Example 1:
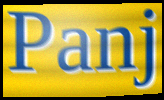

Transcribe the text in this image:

Panj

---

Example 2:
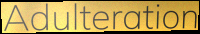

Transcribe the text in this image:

Adulteration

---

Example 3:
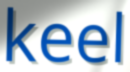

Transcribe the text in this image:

keel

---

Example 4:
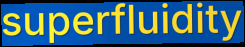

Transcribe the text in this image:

superfluidity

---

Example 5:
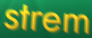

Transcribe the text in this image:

strem